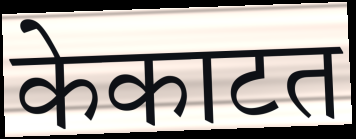
केकाटत